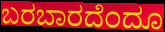
ಬರಬಾರದೆಂದೂ